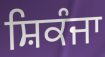
ਸ਼ਿਕੰਜਾ